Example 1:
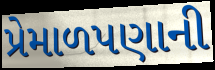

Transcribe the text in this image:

પ્રેમાળપણાની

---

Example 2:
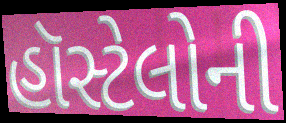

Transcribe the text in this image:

હૉસ્ટેલોની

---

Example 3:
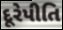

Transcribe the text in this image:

દૂરેપીતિ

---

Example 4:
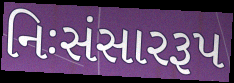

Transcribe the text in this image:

નિઃસંસારરૂપ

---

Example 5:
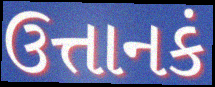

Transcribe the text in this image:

ઉત્તાનકં